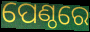
ପେଣ୍ଠରେ